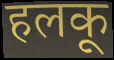
हलकू